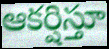
ఆకర్షిస్తూ